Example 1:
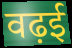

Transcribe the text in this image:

वढ़ई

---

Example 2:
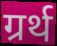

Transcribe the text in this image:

ग्रर्थ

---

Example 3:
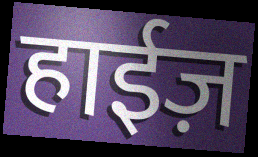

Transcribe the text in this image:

हाईज़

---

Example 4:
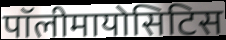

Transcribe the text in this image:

पॉलीमायोसिटिस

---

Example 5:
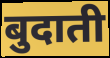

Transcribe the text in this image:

बुदाती